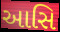
આસિ